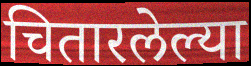
चितारलेल्या